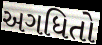
અગધિતો